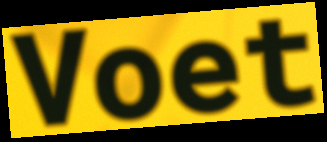
Voet